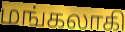
மங்கலாகி